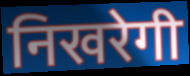
निखरेगी